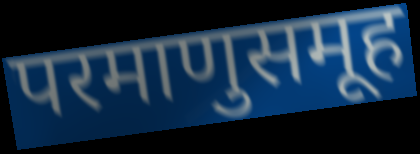
परमाणुसमूह